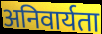
अनिवार्यता